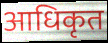
आधिकृत